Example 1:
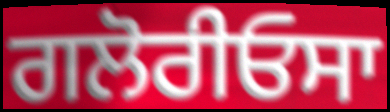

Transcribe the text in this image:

ਗਲੋਰੀਓਸਾ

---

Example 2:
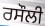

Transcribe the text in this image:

ਰਸੌਲੀ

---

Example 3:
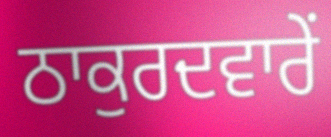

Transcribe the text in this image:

ਠਾਕੁਰਦਵਾਰੇਂ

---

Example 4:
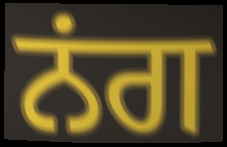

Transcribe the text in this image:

ਨਂਗ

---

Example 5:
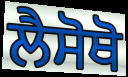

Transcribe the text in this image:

ਲੈਸੋਥੋ